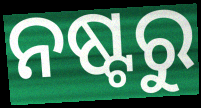
ନଷ୍ଟରୁ